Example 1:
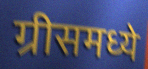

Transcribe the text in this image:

ग्रीसमध्ये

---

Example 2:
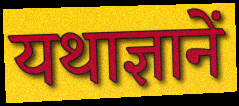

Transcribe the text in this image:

यथाज्ञानें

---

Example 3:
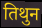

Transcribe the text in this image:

तिथुन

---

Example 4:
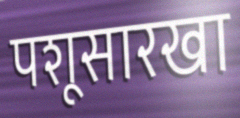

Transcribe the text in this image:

पशूसारखा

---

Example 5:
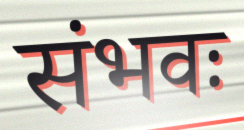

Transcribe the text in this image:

संभवः